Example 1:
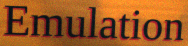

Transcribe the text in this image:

Emulation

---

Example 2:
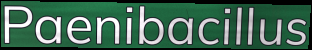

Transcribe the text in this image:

Paenibacillus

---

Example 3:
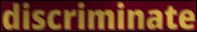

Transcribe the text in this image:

discriminate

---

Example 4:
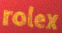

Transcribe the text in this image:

rolex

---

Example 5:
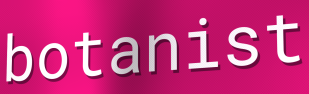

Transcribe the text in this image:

botanist